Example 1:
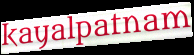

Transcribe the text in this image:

kayalpatnam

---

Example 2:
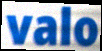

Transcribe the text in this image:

valo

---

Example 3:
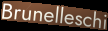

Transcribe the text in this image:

Brunelleschi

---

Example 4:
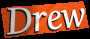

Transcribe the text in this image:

Drew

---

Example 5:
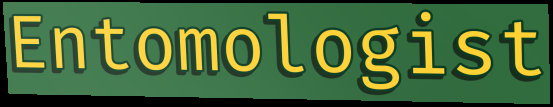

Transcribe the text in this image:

Entomologist